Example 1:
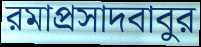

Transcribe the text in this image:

রমাপ্রসাদবাবুর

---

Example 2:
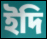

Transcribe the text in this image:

ইদি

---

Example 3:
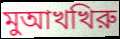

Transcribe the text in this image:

মুআখখিরু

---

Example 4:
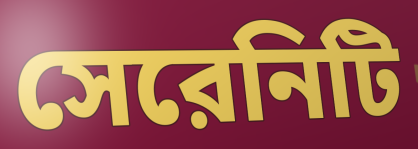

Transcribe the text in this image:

সেরেনিটি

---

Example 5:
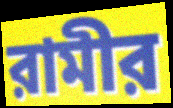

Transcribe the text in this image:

রামীর